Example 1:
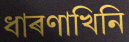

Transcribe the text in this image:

ধাৰণাখিনি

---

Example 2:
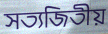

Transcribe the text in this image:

সত্যজিতীয়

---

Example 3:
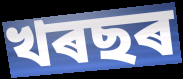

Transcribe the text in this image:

খৰছৰ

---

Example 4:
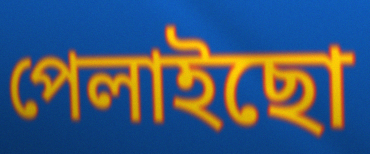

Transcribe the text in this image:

পেলাইছো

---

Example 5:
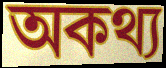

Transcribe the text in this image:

অকথ্য